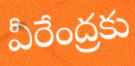
వీరేంద్రకు